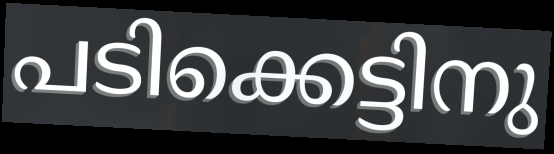
പടിക്കെട്ടിനു